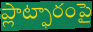
ప్లాట్ఫారంపై